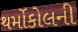
થર્મોકોલની